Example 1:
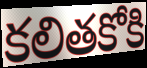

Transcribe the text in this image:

కలితకోకి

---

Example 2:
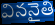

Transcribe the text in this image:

విననైతి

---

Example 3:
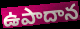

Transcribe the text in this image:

ఉపాదాన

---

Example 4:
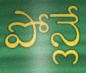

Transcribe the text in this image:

పోన్లే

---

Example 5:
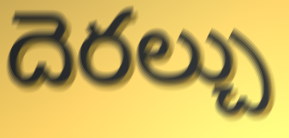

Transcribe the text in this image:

దెరల్చు